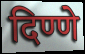
दिण्णे